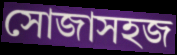
সোজাসহজ